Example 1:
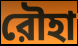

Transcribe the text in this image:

রৌহা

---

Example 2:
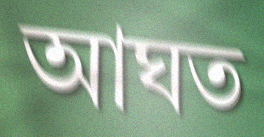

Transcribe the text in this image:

আঘত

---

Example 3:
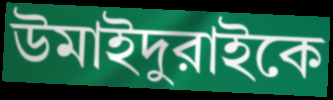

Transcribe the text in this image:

উমাইদুরাইকে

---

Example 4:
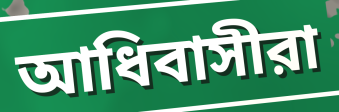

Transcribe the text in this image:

আধিবাসীরা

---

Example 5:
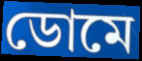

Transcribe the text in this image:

ডোমে